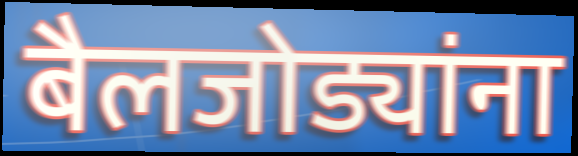
बैलजोड्यांना